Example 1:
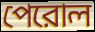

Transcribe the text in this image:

পেরোল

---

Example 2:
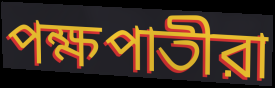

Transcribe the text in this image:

পক্ষপাতীরা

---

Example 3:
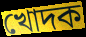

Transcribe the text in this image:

খোদক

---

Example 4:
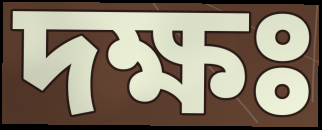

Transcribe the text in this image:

দক্ষঃ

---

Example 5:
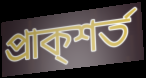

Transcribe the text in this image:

প্রাক্‌শর্ত